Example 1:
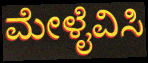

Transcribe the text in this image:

ಮೇಳೈವಿಸಿ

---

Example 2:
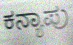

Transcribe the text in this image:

ಕನ್ಯಾಪು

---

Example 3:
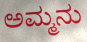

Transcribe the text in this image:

ಅಮ್ಮನು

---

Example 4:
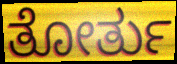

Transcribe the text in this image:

ತೋರ್ತು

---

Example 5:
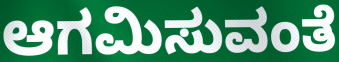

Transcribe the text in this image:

ಆಗಮಿಸುವಂತೆ